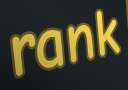
rank